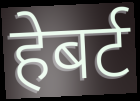
हेबर्ट